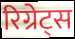
रिग्रेट्स